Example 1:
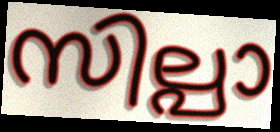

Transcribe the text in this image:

സില്പാ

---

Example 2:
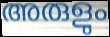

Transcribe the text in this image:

അരുളും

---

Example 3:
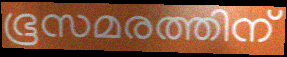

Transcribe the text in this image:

ഭൂസമരത്തിന്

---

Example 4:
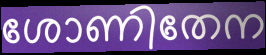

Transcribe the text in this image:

ശോണിതേന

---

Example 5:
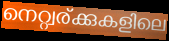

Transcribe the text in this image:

നെറ്റ്വര്ക്കുകളിലെ